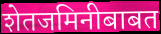
शेतजमिनीबाबत